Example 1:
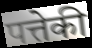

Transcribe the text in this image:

पत्तेकी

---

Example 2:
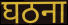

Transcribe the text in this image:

घठना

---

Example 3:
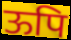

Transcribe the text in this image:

ऊपि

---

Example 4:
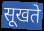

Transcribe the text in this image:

सूखते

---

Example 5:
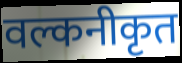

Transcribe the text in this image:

वल्कनीकृत